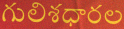
గులిశధారల